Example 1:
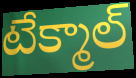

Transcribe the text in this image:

టేక్మాల్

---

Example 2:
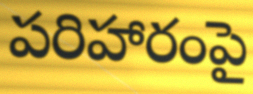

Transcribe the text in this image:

పరిహారంపై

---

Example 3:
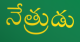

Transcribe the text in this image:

నేత్రుడు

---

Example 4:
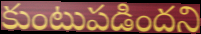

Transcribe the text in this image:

కుంటుపడిందని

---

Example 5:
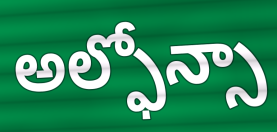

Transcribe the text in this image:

అల్ఫోన్సా